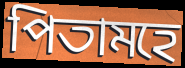
পিতামহে